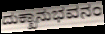
ದುಕ್ಖಾನುಭವನಂ